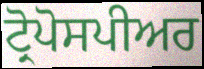
ਟ੍ਰੋਪੋਸਪੀਅਰ